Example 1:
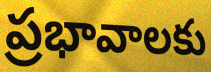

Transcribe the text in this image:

ప్రభావాలకు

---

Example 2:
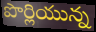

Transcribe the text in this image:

పొర్లియున్న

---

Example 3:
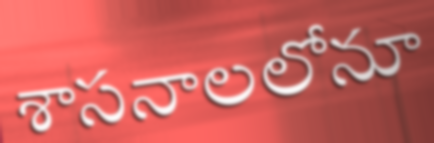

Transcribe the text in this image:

శాసనాలలోనూ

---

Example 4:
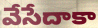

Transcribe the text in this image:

వేసేదాకా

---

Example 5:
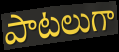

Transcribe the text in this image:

పాటలుగా